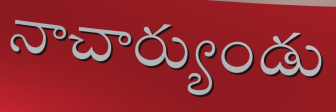
నాచార్యుండు